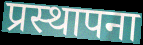
प्रस्थापना